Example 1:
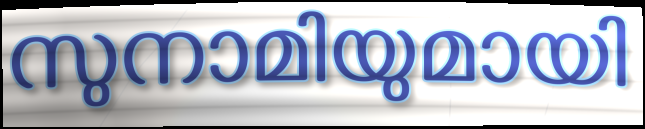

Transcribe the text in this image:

സുനാമിയുമായി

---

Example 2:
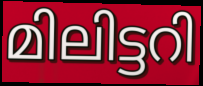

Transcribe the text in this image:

മിലിട്ടറി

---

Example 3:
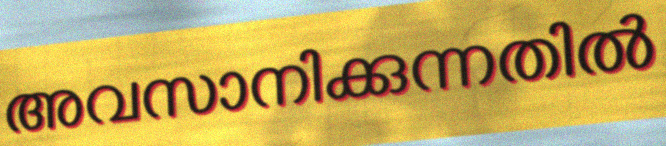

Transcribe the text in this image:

അവസാനിക്കുന്നതിൽ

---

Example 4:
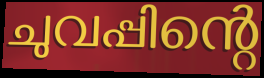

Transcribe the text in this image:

ചുവപ്പിന്റെ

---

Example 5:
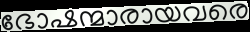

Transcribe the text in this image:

ഭോഷന്മാരായവരെ